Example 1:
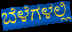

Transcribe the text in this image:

ಬೆಳೆಗಳಲ್ಲಿ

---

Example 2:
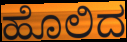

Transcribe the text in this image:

ಹೊಲಿದ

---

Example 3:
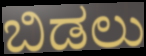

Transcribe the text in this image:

ಬಿಡಲು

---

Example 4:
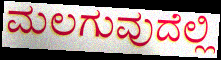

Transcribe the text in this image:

ಮಲಗುವುದೆಲ್ಲಿ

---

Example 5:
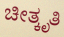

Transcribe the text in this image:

ಚೀತ್ಕೃತಿ